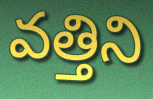
వత్తిని